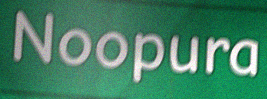
Noopura